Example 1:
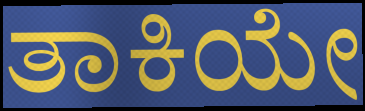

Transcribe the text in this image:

ತಾಕಿಯೇ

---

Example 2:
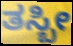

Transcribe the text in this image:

ತಸ್ಬೀ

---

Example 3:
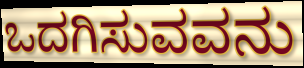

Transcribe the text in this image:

ಒದಗಿಸುವವನು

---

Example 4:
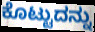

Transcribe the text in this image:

ಕೊಟ್ಟುದನ್ನು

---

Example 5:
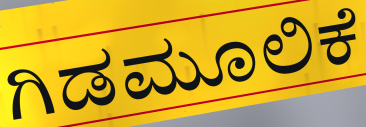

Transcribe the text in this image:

ಗಿಡಮೂಲಿಕೆ